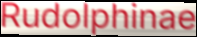
Rudolphinae